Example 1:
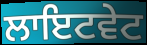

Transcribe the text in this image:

ਲਾਇਟਵੇਟ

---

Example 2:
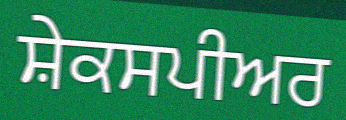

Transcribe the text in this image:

ਸ਼ੇਕਸਪੀਅਰ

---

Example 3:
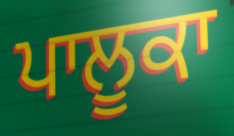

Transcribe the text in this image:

ਪਾਲੂਕਾ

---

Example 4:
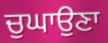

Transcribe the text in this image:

ਚੁਘਾਉਣਾ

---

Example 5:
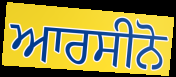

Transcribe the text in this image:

ਆਰਸੀਨੋ